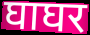
घाघर